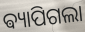
ଵ୍ୟାପିଗଲା